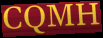
CQMH